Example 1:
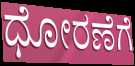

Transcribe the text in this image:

ಧೋರಣೆಗೆ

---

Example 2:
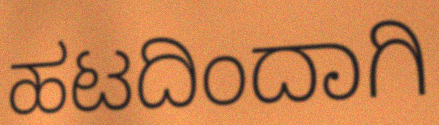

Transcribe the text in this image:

ಹಟದಿಂದಾಗಿ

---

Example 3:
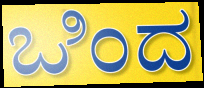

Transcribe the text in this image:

ಒಿಂದ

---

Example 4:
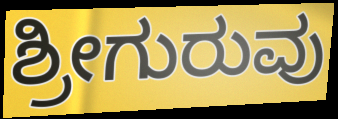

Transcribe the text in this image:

ಶ್ರೀಗುರುವು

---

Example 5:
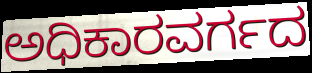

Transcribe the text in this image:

ಅಧಿಕಾರವರ್ಗದ